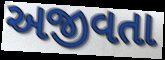
અજીવતા